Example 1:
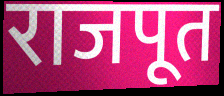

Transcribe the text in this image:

राजपूत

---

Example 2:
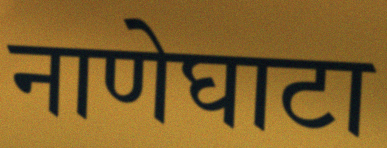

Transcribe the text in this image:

नाणेघाटा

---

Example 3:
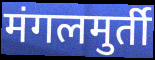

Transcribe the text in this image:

मंगलमुर्ती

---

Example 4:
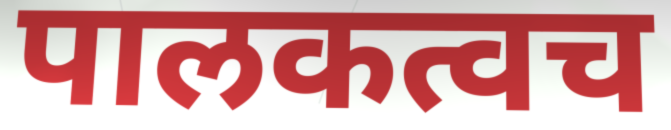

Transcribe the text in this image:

पालकत्वच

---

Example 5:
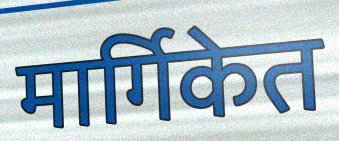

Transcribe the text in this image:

मार्गिकेत